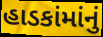
હાડકાંમાંનું